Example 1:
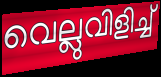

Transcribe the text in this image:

വെല്ലുവിളിച്ച്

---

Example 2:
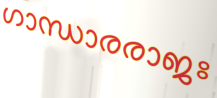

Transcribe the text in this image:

ഗാന്ധാരരാജഃ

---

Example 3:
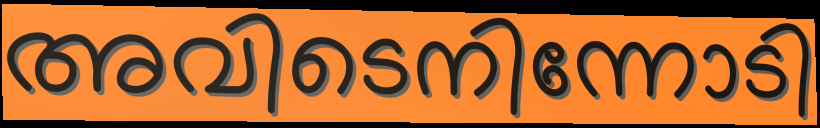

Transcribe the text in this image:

അവിടെനിന്നോടി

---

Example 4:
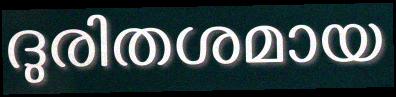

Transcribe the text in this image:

ദുരിതശമായ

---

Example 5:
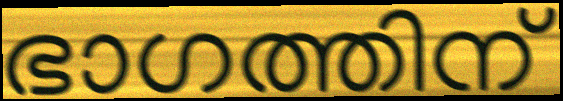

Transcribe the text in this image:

ഭാഗത്തിന്